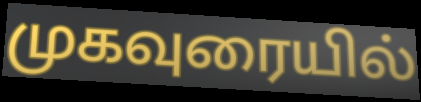
முகவுரையில்